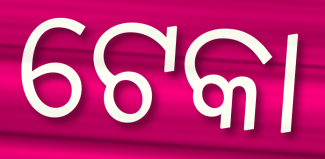
ଟେକା